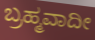
ಬ್ರಹ್ಮವಾದೀ